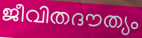
ജീവിതദൗത്യം